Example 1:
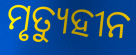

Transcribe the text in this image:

ମୃତ୍ୟୁହୀନ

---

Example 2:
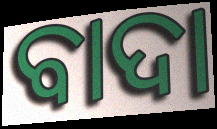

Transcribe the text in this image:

ବାଦା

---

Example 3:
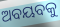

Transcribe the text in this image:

ଅବୟବକୁ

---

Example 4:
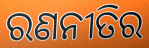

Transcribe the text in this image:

ରଣନୀତିର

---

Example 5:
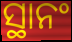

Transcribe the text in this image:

ସ୍ଥାନଂ